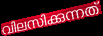
വിലസിക്കുന്നത്